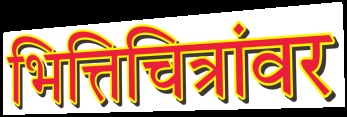
भित्तिचित्रांवर